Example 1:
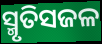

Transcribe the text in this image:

ସ୍ମୃତିସଜଳ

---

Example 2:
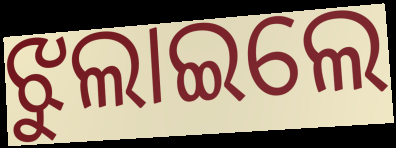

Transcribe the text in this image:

ଝୁଲାଇଲେ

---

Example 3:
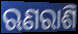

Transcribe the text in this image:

ଋଣରାଶି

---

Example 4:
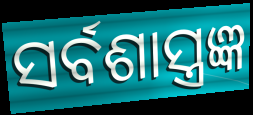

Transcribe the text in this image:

ସର୍ବଶାସ୍ତ୍ରଜ୍ଞ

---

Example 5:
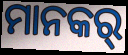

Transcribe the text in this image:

ମାନକର୍